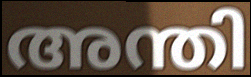
അന്തി